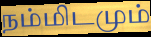
நம்மிடமும்